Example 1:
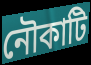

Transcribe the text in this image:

নৌকাটি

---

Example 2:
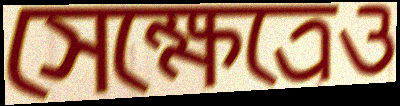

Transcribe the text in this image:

সেক্ষেত্রেও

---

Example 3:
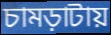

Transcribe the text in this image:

চামড়াটায়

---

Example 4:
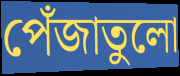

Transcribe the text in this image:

পেঁজাতুলো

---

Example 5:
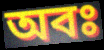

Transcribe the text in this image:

অবঃ